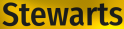
Stewarts